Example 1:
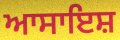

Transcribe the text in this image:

ਆਸਾਇਸ਼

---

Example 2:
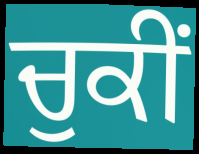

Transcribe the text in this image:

ਚੁਕੀਂ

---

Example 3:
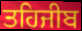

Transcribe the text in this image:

ਤਹਿਜੀਬ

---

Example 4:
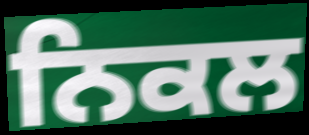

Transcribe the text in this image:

ਨਿਕਲ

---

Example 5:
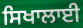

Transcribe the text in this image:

ਸਿਖਾਲਾਈ